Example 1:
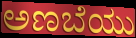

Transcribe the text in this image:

ಅಣಬೆಯು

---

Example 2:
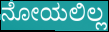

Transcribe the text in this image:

ನೋಯಲಿಲ್ಲ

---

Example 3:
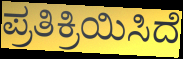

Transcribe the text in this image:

ಪ್ರತಿಕ್ರಿಯಿಸಿದೆ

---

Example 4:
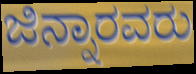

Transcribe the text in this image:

ಜಿನ್ನಾರವರು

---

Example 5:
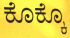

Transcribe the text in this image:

ಕೊಕ್ಕೊ